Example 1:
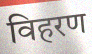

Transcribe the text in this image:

विहरण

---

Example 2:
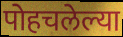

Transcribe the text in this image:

पोहचलेल्या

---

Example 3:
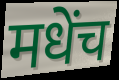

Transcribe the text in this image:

मधेंच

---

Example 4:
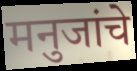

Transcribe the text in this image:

मनुजांचे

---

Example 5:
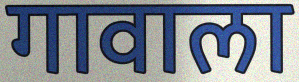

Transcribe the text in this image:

गावाला